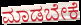
ಮಾಡಬೇಕೆ